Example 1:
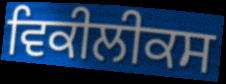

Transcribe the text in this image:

ਵਿਕੀਲੀਕਸ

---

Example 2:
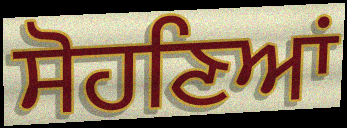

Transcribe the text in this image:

ਸੋਹਣਿਆਂ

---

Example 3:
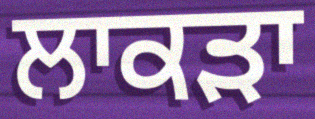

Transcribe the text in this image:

ਲਾਕੜਾ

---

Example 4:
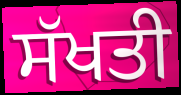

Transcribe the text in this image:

ਸੱਖਤੀ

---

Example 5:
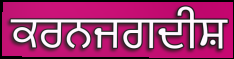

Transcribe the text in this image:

ਕਰਨਜਗਦੀਸ਼